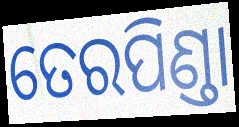
ତେରପିଣ୍ଡା